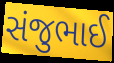
સંજુભાઈ